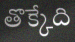
తొక్కేది